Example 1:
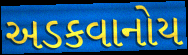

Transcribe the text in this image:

અડકવાનોય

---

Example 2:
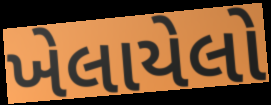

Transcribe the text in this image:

ખેલાયેલો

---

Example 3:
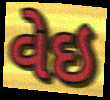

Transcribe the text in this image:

વેઇ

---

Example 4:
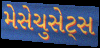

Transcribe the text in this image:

મેસેચુસેટ્સ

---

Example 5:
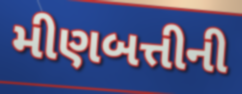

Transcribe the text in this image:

મીણબત્તીની